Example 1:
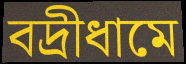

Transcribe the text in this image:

বদ্রীধামে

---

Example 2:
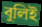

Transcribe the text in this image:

বুলিই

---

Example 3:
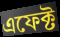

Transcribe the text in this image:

এফেক্ট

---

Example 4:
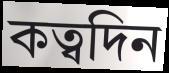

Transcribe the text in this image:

কত্বদিন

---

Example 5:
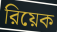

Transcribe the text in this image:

রিয়েক